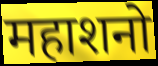
महाशनो